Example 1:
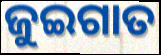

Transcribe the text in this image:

ଜୁଇଗାତ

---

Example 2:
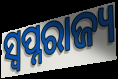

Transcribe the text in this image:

ସ୍ୱପ୍ନରାଜ୍ୟ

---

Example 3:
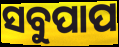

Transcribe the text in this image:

ସବୁପାପ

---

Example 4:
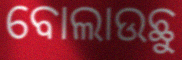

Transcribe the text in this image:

ବୋଲାଉଛୁ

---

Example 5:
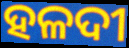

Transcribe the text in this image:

ହଳଦୀ